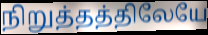
நிறுத்தத்திலேயே